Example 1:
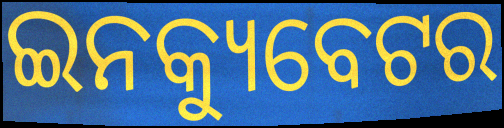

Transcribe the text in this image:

ଇନକ୍ୟୁବେଟର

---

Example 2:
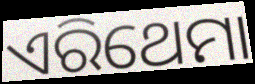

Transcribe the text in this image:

ଏରିଥେମା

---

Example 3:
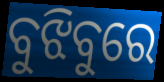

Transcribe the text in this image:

ବୁଝିବୁରେ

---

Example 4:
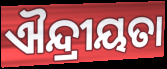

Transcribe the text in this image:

ଐନ୍ଦ୍ରୀୟତା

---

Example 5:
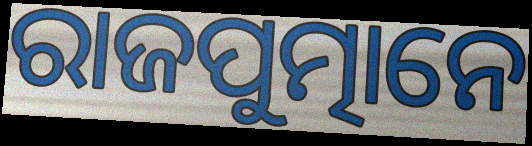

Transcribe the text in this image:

ରାଜପୁତ୍ମାନେ